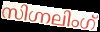
സിഗ്നലിംഗ്